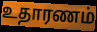
உதாரணம்